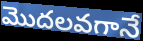
మొదలవగానే